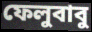
ফেলুবাবু